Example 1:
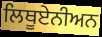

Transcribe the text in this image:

ਲਿਥੂਏਨੀਅਨ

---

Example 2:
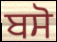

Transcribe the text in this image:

ਬਸੋ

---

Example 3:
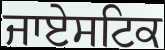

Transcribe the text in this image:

ਜਾਏਸਟਿਕ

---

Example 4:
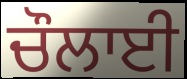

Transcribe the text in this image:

ਚੌਲਾਈ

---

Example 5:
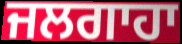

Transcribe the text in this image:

ਜਲਗਾਹਾ